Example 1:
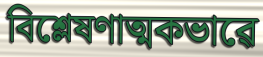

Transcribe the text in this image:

বিশ্লেষণাত্মকভাৱে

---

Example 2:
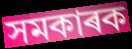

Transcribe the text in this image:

সমকাৰক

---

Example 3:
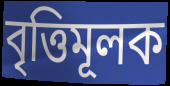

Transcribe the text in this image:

বৃত্তিমূলক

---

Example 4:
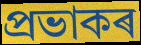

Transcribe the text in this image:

প্ৰভাকৰ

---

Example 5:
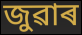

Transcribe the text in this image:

জুৱাৰ